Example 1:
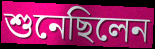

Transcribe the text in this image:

শুনেছিলেন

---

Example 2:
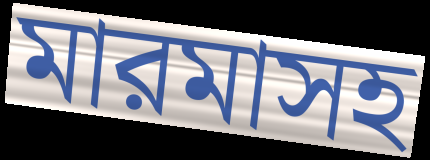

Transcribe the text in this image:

মারমাসহ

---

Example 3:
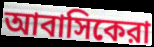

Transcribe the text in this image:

আবাসিকেরা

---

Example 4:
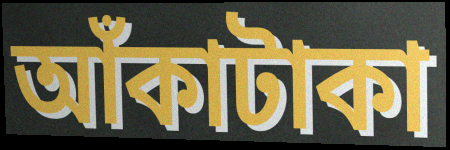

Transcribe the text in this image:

আঁকাটাকা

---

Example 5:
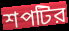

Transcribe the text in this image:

শপটির